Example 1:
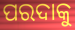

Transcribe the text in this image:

ପରଦାକୁ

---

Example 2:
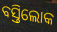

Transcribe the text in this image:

ବସ୍ତିଲୋକ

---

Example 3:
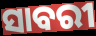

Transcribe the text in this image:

ସାବରୀ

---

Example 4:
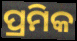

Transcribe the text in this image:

ପ୍ରମିକ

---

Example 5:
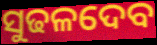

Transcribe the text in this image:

ସୁଢଳଦେବ